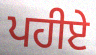
ਪਹੀਏ